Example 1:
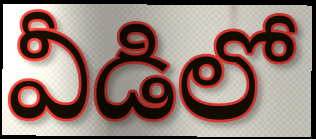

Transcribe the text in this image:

వీడిలో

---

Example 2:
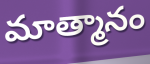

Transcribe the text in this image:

మాత్మానం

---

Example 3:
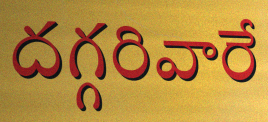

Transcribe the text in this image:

దగ్గరివారే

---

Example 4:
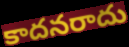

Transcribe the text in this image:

కాదనరాదు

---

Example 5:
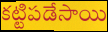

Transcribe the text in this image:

కట్టిపడేసాయి